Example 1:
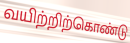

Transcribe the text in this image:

வயிற்றிற்கொண்டு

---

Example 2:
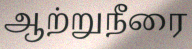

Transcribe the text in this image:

ஆற்றுநீரை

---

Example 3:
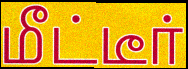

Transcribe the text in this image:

மீட்டீர்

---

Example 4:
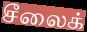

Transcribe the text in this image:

சீலைக்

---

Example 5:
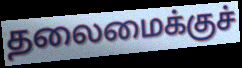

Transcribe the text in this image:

தலைமைக்குச்